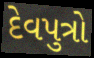
દેવપુત્રો